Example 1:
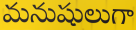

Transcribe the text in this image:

మనుషులుగా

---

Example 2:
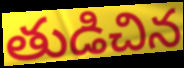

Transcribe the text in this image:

తుడిచిన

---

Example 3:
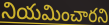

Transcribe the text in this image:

నియమించారని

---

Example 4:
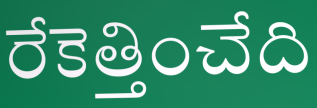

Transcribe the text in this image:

రేకెత్తించేది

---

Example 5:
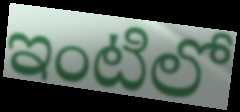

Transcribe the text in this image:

ఇంటిలో